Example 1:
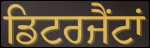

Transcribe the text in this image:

ਡਿਟਰਜੈਂਟਾਂ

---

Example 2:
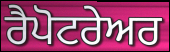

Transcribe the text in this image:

ਰੈਪੋਟਰੇਅਰ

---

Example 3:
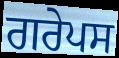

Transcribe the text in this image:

ਗਰੇਪਸ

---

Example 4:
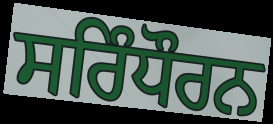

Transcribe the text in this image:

ਸਰਿੰਧੌਰਨ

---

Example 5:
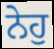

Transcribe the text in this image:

ਨੇਹੁ